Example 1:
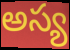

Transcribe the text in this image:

అస్య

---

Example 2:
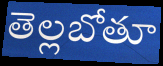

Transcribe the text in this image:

తెల్లబోతూ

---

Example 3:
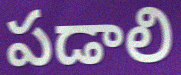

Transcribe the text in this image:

పడాలి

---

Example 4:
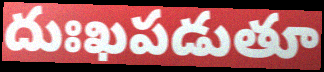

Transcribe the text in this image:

దుఃఖపడుతూ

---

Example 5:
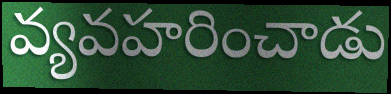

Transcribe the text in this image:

వ్యవహరించాడు